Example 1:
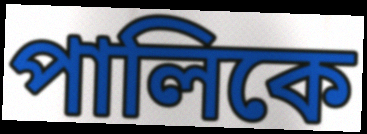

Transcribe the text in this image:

পালিকে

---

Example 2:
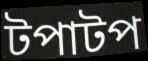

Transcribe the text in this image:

টপাটপ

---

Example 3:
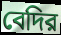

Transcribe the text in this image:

বেদির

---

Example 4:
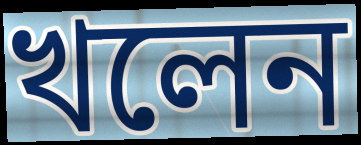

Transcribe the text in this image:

খলেন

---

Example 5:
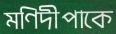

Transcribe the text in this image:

মণিদীপাকে